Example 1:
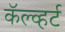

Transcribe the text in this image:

कॅल्व्हर्ट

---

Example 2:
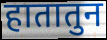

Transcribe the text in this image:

हातातुन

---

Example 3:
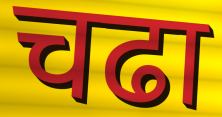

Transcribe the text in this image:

चढा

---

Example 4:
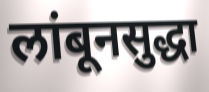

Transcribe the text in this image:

लांबूनसुद्धा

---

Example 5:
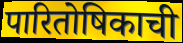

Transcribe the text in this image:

पारितोषिकाची